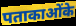
पताकाओंके